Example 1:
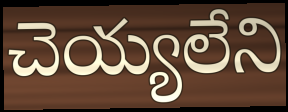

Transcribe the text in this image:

చెయ్యలేని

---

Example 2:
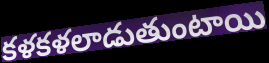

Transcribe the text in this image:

కళకళలాడుతుంటాయి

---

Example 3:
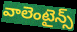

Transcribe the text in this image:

వాలెంటైన్స్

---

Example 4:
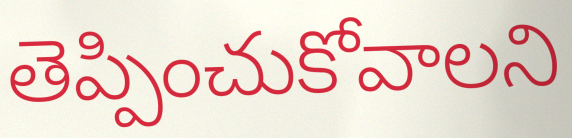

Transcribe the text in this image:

తెప్పించుకోవాలని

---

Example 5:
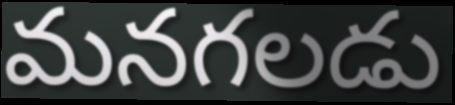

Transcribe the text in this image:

మనగలడు